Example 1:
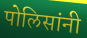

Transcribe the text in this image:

पोलिसांनी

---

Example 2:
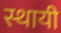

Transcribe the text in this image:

स्थायी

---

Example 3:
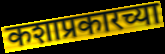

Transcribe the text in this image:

कशाप्रकारच्या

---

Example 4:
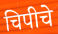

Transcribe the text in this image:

चिपीचे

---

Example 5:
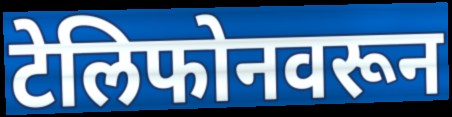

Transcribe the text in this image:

टेलिफोनवरून